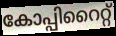
കോപ്പിറൈറ്റ്